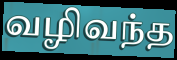
வழிவந்த